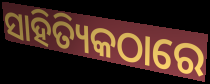
ସାହିତ୍ୟିକଠାରେ